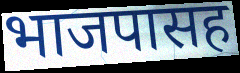
भाजपासह